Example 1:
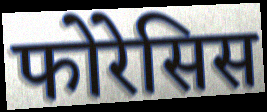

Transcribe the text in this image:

फोरेसिस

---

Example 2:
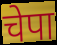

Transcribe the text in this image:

चेपा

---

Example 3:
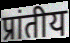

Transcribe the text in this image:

प्रांतीय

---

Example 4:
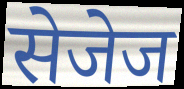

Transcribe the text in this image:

सेजेज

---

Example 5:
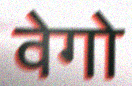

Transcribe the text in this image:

वेगो